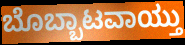
ಬೊಬ್ಬಾಟವಾಯ್ತು